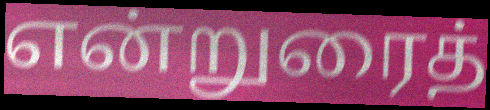
என்றுரைத்